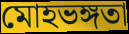
মোহভঙ্গতা